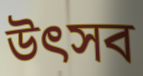
উত্‍সব